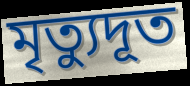
মৃত্যুদূত